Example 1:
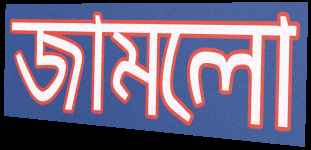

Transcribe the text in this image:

জামলো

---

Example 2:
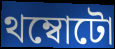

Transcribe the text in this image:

থম্বোটো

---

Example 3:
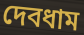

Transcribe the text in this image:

দেবধাম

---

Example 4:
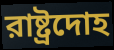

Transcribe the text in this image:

রাষ্ট্রদোহ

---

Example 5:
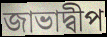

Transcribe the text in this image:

জাভাদ্বীপ